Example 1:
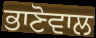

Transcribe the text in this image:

ਭਾਣੋਵਾਲ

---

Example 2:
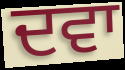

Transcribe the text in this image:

ਦਵਾ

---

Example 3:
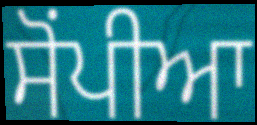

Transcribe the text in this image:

ਸੋਂਪੀਆ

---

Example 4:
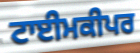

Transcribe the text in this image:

ਟਾਈਮਕੀਪਰ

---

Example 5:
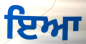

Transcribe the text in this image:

ਇਆ